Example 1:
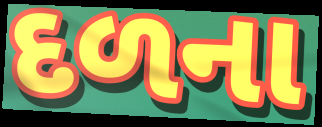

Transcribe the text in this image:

દળના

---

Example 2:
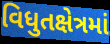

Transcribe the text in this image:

વિધુતક્ષેત્રમાં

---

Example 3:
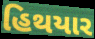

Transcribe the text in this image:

હિથયાર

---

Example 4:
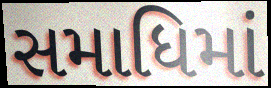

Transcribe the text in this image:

સમાધિમાં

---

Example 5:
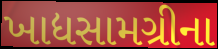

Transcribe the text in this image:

ખાદ્યસામગ્રીના